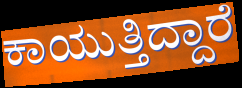
ಕಾಯುತ್ತಿದ್ದಾರೆ